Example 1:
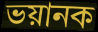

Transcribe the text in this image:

ভয়ানক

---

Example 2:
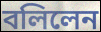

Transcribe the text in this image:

বলিলেন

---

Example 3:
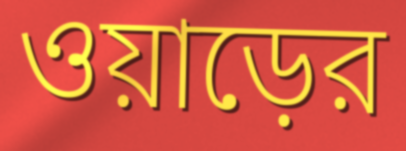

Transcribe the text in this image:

ওয়াড়ের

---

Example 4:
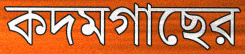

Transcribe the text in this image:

কদমগাছের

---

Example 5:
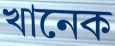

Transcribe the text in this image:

খানেক